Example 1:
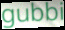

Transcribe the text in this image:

gubbi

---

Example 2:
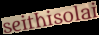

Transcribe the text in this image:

seithisolai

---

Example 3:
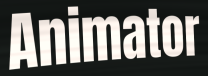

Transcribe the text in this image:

Animator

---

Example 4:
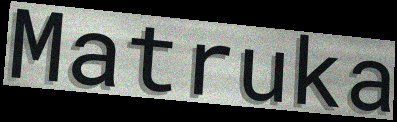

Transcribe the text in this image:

Matruka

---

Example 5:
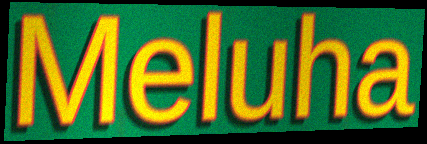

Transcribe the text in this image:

Meluha